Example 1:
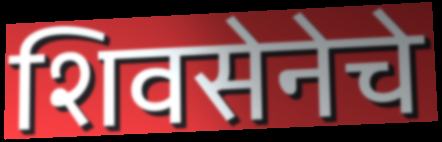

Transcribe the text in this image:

शिवसेनेचे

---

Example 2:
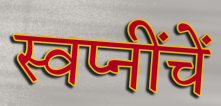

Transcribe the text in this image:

स्वप्नींचें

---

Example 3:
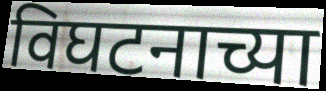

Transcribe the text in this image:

विघटनाच्या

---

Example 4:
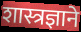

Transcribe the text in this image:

शास्त्रज्ञाने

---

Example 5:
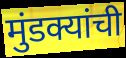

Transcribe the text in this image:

मुंडक्यांची